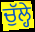
ਚੁੱਲ੍ਹੇ